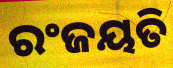
ରଂଜୟତି